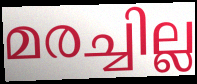
മരച്ചില്ല